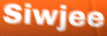
Siwjee